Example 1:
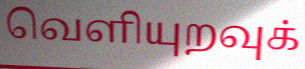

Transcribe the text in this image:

வெளியுறவுக்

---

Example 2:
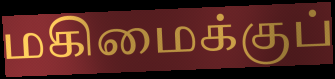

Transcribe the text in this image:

மகிமைக்குப்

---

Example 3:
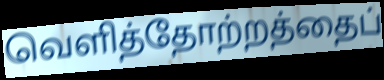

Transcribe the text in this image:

வெளித்தோற்றத்தைப்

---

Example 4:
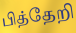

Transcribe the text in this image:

பித்தேறி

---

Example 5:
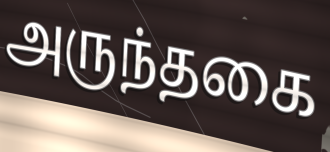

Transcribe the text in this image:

அருந்தகை